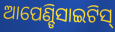
ଆପେଣ୍ଡିସାଇଟିସ୍